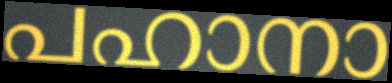
പഹാനാ